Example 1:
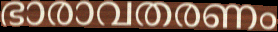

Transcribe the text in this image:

ഭാരാവതരണം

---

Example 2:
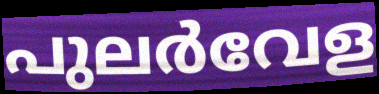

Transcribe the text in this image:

പുലർവേള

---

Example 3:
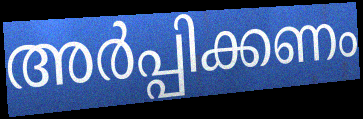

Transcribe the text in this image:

അർപ്പിക്കണം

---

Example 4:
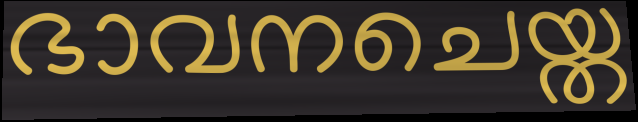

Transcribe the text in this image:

ഭാവനചെയ്ത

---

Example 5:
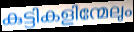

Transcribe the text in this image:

കുട്ടികളിന്മേലും